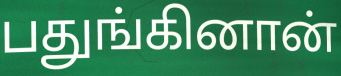
பதுங்கினான்